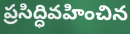
ప్రసిద్ధివహించిన